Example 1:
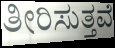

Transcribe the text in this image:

ತೀರಿಸುತ್ತವೆ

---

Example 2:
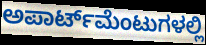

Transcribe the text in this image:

ಅಪಾರ್ಟ್‌ಮೆಂಟುಗಳಲ್ಲಿ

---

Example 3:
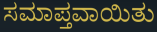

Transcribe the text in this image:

ಸಮಾಪ್ತವಾಯಿತು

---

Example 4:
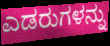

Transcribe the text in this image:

ಎಡರುಗಳನ್ನು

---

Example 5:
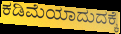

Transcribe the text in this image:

ಕಡಿಮೆಯಾದುದಕ್ಕೆ